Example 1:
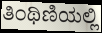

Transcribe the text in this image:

ತಿಂಥಿಣಿಯಲ್ಲಿ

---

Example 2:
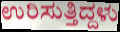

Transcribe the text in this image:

ಉರಿಸುತ್ತಿದ್ದಳು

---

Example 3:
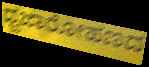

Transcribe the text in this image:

ಧ್ವಜಾರೋಹಣದ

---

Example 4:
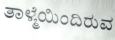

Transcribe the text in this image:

ತಾಳ್ಮೆಯಿಂದಿರುವ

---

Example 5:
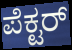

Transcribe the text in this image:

ಪೆಕ್ಟರ್